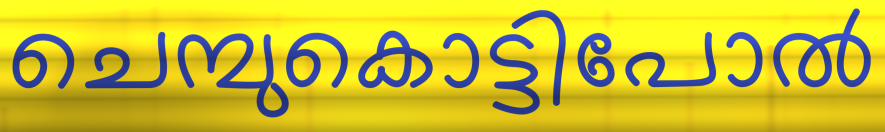
ചെമ്പുകൊട്ടിപോൽ